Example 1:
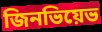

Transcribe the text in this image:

জিনভিয়েভ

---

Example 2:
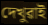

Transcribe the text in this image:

দেখুৱাই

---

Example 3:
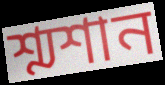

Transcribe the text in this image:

শ্মশান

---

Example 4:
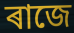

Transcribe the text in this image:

ৰাজে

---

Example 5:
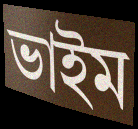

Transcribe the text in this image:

ভাইম